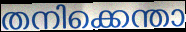
തനിക്കെന്താ